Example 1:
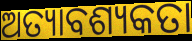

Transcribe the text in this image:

ଅତ୍ୟାବଶ୍ୟକତା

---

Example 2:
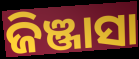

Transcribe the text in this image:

ଜିଞ୍ଜାସା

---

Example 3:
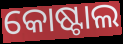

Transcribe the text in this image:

କୋଷ୍ଟାଲ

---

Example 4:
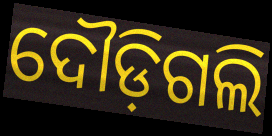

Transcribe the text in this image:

ଦୌଡ଼ିଗଲି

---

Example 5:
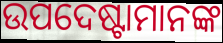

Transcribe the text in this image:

ଉପଦେଷ୍ଟାମାନଙ୍କ